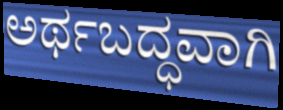
ಅರ್ಥಬದ್ಧವಾಗಿ